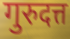
गुरुदत्त